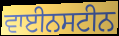
ਵਾਈਨਸਟੀਨ